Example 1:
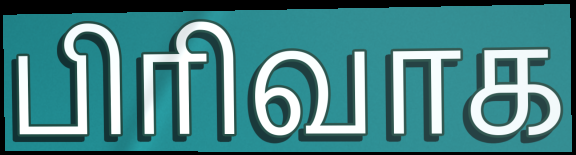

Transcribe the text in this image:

பிரிவாக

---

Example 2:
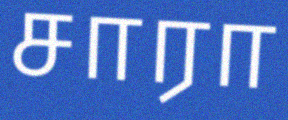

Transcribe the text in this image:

சாரா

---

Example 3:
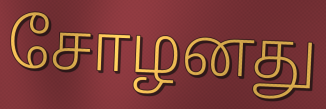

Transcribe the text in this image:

சோழனது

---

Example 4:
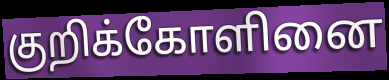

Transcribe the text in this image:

குறிக்கோளினை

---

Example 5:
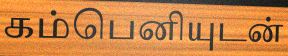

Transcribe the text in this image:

கம்பெனியுடன்